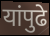
यांपुढे